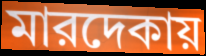
মারদেকায়